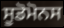
ਸੂਡੋਮੋਨਸ